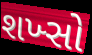
શખ્સો